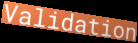
Validation